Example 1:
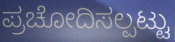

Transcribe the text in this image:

ಪ್ರಚೋದಿಸಲ್ಪಟ್ಟು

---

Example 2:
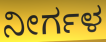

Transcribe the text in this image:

ನೀರ್ಗಳ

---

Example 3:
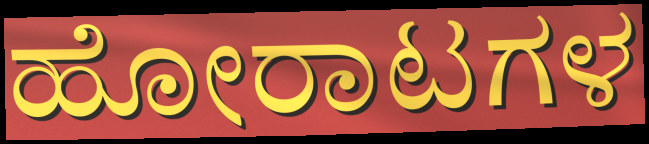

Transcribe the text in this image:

ಹೋರಾಟಗಳ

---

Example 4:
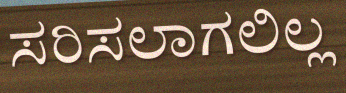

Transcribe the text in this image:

ಸರಿಸಲಾಗಲಿಲ್ಲ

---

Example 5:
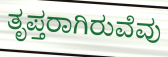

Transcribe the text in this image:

ತೃಪ್ತರಾಗಿರುವೆವು